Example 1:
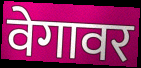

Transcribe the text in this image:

वेगावर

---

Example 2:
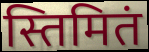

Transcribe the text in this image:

स्तिमितं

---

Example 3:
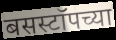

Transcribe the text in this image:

बसस्टॉपच्या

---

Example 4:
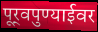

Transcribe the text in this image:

पूर्वपुण्याईवर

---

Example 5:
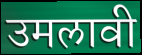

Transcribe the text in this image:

उमलावी